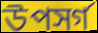
উপসর্গ